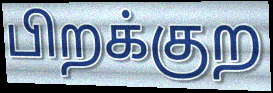
பிறக்குற